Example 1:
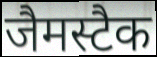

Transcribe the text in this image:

जैमस्टैक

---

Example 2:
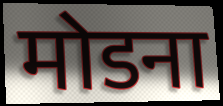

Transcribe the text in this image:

मोडना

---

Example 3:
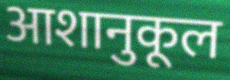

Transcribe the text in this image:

आशानुकूल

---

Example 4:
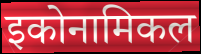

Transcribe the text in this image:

इकोनामिकल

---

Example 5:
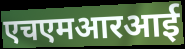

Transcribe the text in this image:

एचएमआरआई